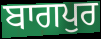
ਬਾਗਪੁਰ